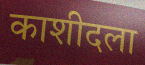
काशीदला